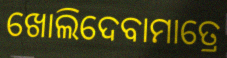
ଖୋଲିଦେବାମାତ୍ରେ